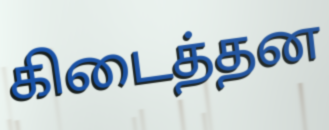
கிடைத்தன